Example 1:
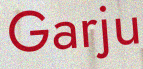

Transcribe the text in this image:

Garju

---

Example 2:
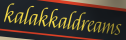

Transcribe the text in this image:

kalakkaldreams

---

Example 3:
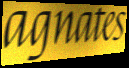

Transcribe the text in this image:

agnates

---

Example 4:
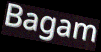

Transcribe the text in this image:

Bagam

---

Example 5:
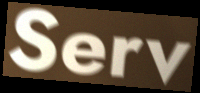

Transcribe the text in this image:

Serv